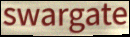
swargate